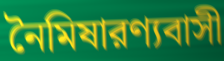
নৈমিষারণ্যবাসী